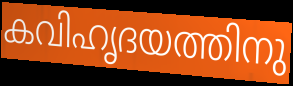
കവിഹൃദയത്തിനു